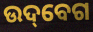
ଉଦ୍‌ବେଗ